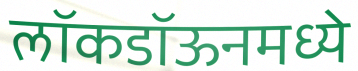
लॉकडॉऊनमध्ये